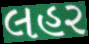
લહર